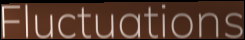
Fluctuations